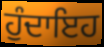
ਹੁੰਦਾਇਹ